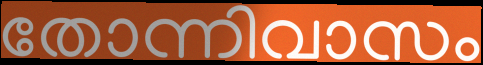
തോന്നിവാസം